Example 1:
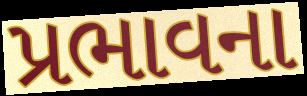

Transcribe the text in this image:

પ્રભાવના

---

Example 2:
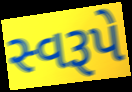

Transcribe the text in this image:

સ્વરૂપે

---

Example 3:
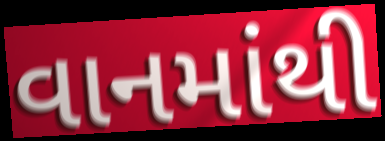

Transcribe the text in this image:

વાનમાંથી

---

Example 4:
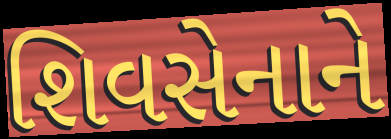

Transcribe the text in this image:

શિવસેનાને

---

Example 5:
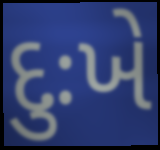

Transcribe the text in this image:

દુઃખે